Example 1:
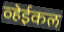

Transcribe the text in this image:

व्हेईकल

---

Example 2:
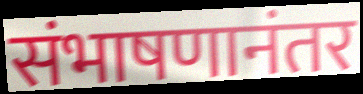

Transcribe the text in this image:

संभाषणानंतर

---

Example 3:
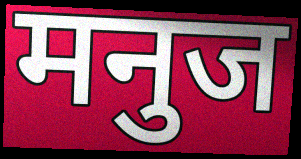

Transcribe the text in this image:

मनुज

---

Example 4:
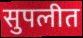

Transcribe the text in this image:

सुपलीत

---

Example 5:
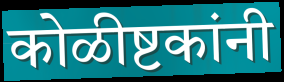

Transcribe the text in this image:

कोळीष्टकांनी